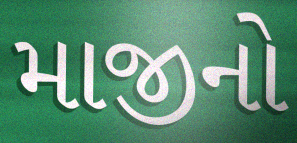
માજીનો